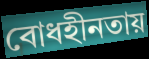
বোধহীনতায়